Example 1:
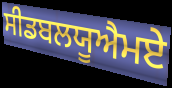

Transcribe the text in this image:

ਸੀਡਬਲਯੂਐਮਏ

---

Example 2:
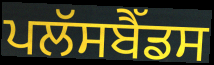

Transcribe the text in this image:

ਪਲੱਸਬੈੱਡਸ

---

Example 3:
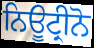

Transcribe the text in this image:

ਨਿਊਟ੍ਰੀਨੋ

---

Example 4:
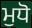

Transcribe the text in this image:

ਮੁਧੋ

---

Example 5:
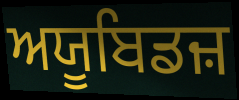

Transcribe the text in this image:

ਅਯੂਬਿਡਜ਼